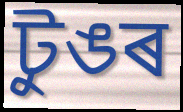
টুঙৰ